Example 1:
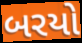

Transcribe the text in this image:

બરયો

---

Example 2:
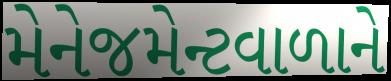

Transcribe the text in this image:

મેનેજમેન્ટવાળાને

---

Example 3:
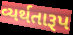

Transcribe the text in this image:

વ્યર્થતારૂપ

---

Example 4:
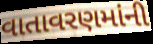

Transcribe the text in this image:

વાતાવરણમાંની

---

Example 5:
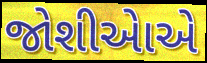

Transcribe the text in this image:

જોશીએાએ